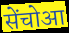
सेंचोआ